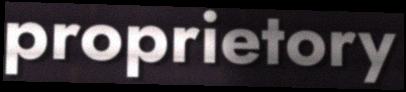
proprietory